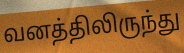
வனத்திலிருந்து